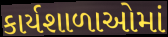
કાર્યશાળાઓમાં